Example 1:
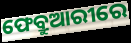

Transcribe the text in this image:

ଫେବ୍ରୁଆରୀରେ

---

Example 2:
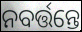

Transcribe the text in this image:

ନବର୍ତ୍ତନ୍ତେ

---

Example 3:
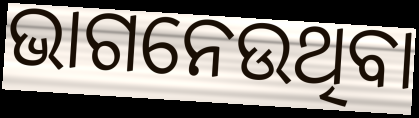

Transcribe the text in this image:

ଭାଗନେଉଥିବା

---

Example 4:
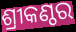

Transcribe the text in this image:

ଶ୍ରୀକଣ୍ଠର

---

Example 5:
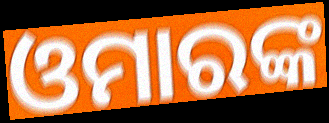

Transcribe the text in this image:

ଓମାରଙ୍କ